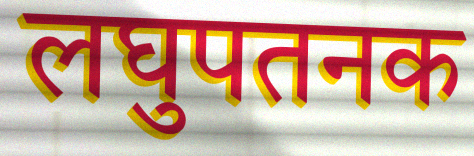
लघुपतनक